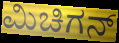
ಮಿಚಿಗನ್